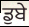
ਡੁਬੇ